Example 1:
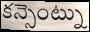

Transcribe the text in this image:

కన్సెంట్ను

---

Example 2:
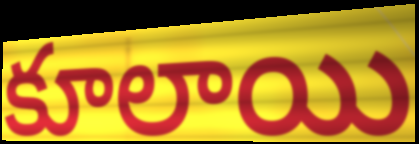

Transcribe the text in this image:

కూలాయి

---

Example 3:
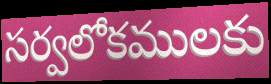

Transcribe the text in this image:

సర్వలోకములకు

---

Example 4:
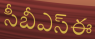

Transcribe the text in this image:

సీబీఎస్ఈ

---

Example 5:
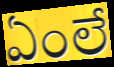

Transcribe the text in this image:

ఏంలే